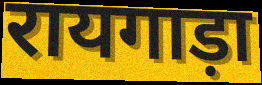
रायगाड़ा